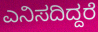
ಎನಿಸದಿದ್ದರೆ